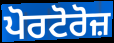
ਪੋਰਟੋਰੋਜ਼